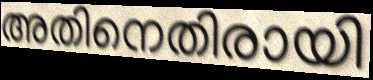
അതിനെതിരായി